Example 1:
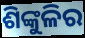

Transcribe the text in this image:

ଶିଙ୍କୁଳିର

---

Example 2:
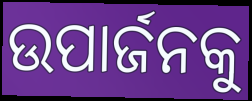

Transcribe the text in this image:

ଉପାର୍ଜନକୁ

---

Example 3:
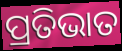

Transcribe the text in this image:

ପ୍ରତିଭାତ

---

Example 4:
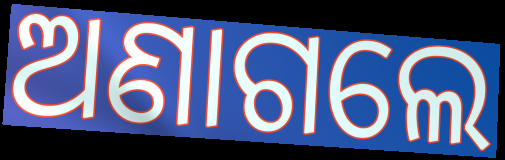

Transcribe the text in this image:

ଅଣାଗଲେ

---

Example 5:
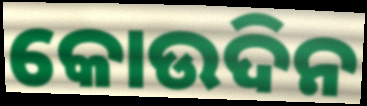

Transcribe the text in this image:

କୋଉଦିନ